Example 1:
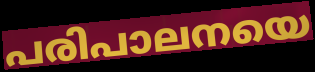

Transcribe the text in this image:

പരിപാലനയെ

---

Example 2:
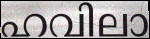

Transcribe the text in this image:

ഹവിലാ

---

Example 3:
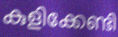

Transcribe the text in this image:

കുളിക്കേണ്ടി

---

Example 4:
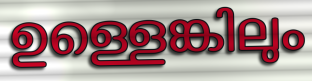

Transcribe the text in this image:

ഉള്ളെങ്കിലും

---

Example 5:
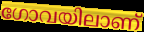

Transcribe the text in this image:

ഗോവയിലാണ്